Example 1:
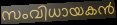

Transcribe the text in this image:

സംവിധായകൻ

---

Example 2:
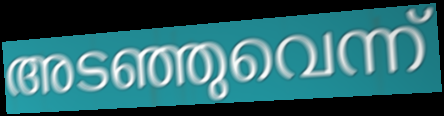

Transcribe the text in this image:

അടഞ്ഞുവെന്ന്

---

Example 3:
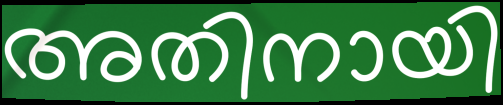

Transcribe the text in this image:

അതിനായി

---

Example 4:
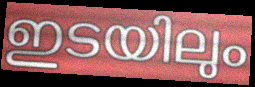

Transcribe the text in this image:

ഇടയിലും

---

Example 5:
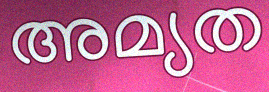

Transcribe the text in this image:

അമ്യത